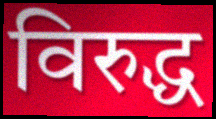
विरुद्ध